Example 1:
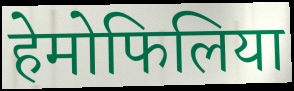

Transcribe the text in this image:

हेमोफिलिया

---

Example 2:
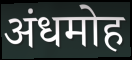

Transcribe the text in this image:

अंधमोह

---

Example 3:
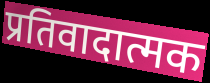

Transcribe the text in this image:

प्रतिवादात्मक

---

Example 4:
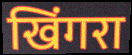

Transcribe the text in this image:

खिंगरा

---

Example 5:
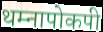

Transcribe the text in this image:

थम्नापोकपी